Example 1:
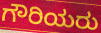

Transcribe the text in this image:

ಗೌರಿಯರು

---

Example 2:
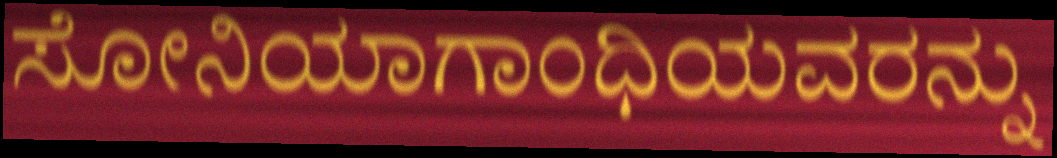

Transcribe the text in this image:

ಸೋನಿಯಾಗಾಂಧಿಯವರನ್ನು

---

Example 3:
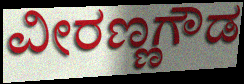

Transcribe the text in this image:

ವೀರಣ್ಣಗೌಡ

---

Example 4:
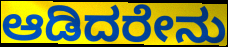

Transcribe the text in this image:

ಆಡಿದರೇನು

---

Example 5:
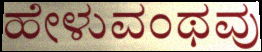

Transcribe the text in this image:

ಹೇಳುವಂಥವು